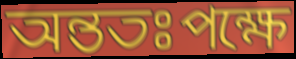
অন্ততঃপক্ষে